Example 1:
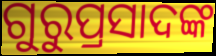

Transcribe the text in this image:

ଗୁରୁପ୍ରସାଦଙ୍କ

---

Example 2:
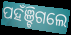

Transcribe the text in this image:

ପହଁଞ୍ଚିଗଲେ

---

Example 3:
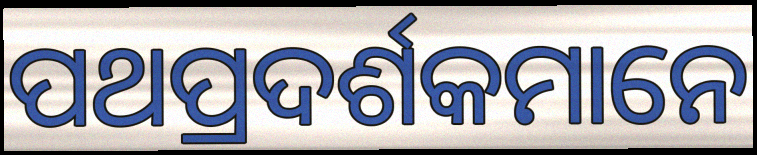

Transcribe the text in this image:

ପଥପ୍ରଦର୍ଶକମାନେ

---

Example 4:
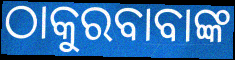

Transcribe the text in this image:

ଠାକୁରବାବାଙ୍କ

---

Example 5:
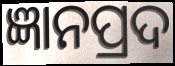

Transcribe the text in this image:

ଜ୍ଞାନପ୍ରଦ